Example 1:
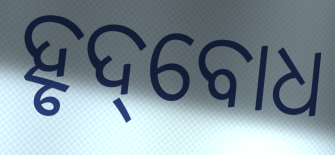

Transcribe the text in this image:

ହୃଦ୍‌ବୋଧ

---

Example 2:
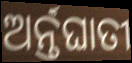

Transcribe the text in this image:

ଅର୍ନ୍ତଘାତୀ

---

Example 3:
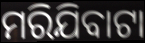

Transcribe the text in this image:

ମରିଯିବାଟା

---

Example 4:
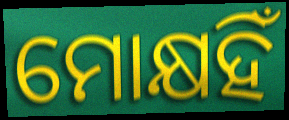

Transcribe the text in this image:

ମୋକ୍ଷହିଁ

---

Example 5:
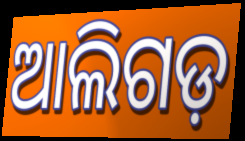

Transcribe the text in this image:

ଆଲିଗଡ଼